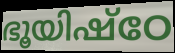
ഭൂയിഷ്ഠേ